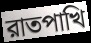
রাতপাখি